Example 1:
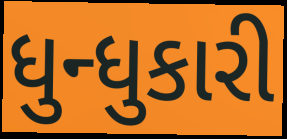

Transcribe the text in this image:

ધુન્ધુકારી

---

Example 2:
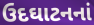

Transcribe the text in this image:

ઉદઘાટનનાં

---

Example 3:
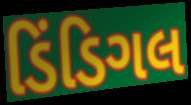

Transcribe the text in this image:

ડિંડિગલ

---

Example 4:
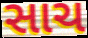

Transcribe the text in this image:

સાચ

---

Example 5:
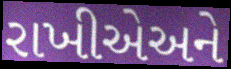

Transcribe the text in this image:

રાખીએઅને